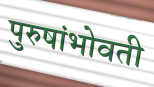
पुरुषांभोवती